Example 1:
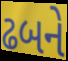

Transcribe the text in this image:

ઢબને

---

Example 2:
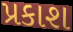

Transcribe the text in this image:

પ્રકાશ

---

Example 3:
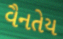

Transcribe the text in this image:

વૈનતેય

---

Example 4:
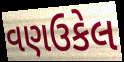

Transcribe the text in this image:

વણઉકેલ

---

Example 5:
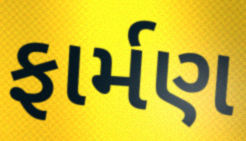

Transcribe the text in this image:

ફાર્મણ